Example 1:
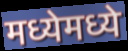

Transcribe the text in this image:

मध्येमध्ये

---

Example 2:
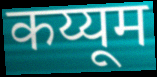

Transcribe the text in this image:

कय्यूम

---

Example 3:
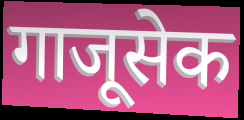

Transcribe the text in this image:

गाजूसेक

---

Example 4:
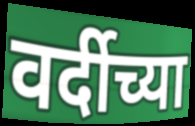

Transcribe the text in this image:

वर्दीच्या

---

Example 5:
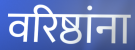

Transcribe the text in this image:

वरिष्ठांना